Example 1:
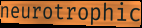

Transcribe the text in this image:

neurotrophic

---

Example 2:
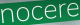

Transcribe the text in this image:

nocere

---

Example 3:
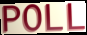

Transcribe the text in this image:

POLL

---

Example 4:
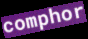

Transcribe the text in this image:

comphor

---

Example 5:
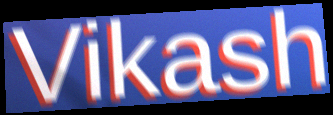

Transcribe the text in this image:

Vikash